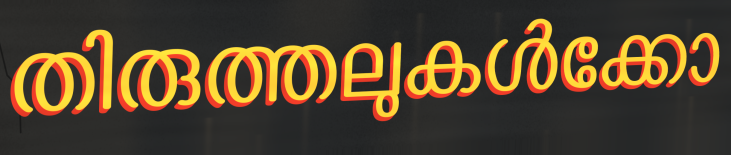
തിരുത്തലുകൾക്കോ